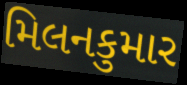
મિલનકુમાર